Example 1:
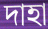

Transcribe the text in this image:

দাহা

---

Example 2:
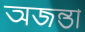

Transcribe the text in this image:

অজন্তা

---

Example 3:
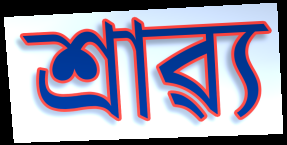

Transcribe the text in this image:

শ্ৰাৱ্য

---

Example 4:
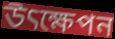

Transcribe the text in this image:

উৎক্ষেপন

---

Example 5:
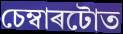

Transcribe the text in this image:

চেম্বাৰটোত